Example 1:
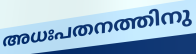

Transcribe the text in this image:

അധഃപതനത്തിനു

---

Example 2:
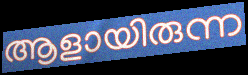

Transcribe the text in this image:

ആളായിരുന്ന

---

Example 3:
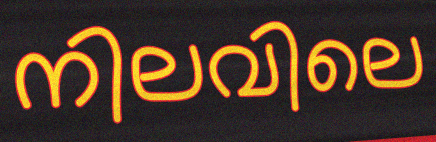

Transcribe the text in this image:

നിലവിലെ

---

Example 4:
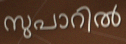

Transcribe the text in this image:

സുപാറിൽ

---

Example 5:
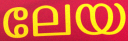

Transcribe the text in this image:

ലേയ